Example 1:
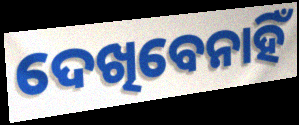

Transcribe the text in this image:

ଦେଖିବେନାହିଁ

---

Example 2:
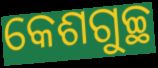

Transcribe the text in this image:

କେଶଗୁଚ୍ଛ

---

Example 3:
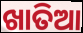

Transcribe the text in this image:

ଖାତିଆ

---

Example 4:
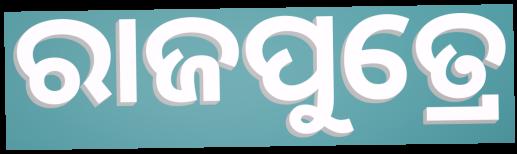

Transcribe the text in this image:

ରାଜପୁତ୍ରେ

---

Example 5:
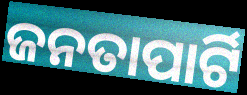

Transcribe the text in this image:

ଜନତାପାର୍ଟି